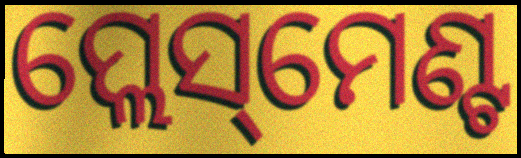
ପ୍ଲେସ୍‌ମେଣ୍ଟ